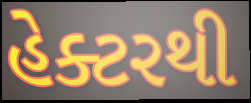
હેક્ટરથી